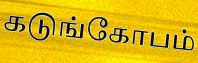
கடுங்கோபம்